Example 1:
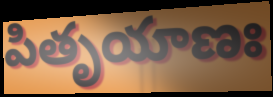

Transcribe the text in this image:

పితృయాణః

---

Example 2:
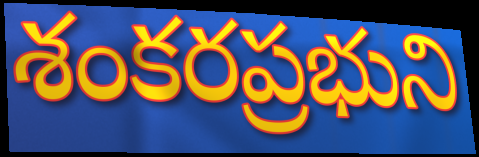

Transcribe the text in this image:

శంకరప్రభుని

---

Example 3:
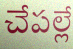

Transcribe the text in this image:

చేపల్లే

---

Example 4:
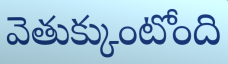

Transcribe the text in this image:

వెతుక్కుంటోంది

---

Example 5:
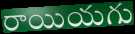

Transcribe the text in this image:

రాయియగు